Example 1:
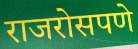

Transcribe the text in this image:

राजरोसपणे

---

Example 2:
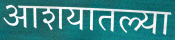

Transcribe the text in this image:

आशयातल्या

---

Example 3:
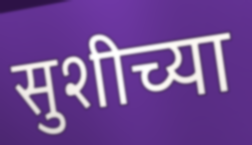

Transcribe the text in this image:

सुशीच्या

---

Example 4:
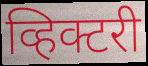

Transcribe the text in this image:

व्हिक्टरी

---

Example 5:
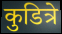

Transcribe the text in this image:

कुडित्रे